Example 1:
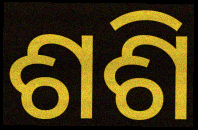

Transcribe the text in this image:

ଶଶି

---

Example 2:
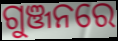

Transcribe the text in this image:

ଗୁଞ୍ଜନରେ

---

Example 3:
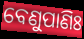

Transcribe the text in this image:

ବେଣୁପାଣିଃ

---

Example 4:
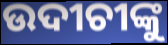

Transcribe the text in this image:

ଉଦୀଚୀଙ୍କୁ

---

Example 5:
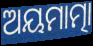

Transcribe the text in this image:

ଅୟମାତ୍ମା